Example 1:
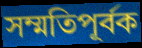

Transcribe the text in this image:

সম্মতিপূর্বক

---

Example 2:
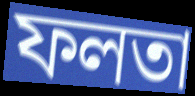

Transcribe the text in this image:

ফলতা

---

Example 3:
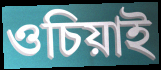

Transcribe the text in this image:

ওচিয়াই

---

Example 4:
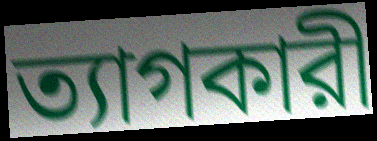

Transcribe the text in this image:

ত্যাগকারী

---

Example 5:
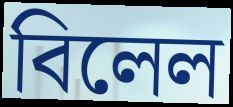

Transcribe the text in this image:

বিলেল